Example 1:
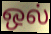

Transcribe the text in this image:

ஒல்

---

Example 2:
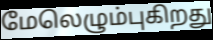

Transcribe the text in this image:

மேலெழும்புகிறது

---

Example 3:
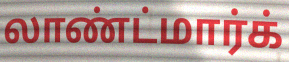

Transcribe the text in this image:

லாண்ட்மார்க்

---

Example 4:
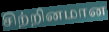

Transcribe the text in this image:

சிற்றினமான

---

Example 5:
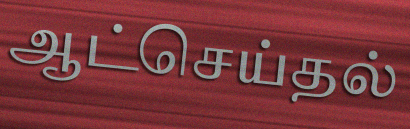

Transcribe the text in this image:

ஆட்செய்தல்